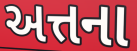
અત્તના